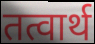
तत्वार्थ